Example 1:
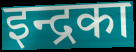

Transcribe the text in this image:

इन्द्रका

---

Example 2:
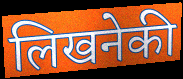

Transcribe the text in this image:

लिखनेकी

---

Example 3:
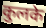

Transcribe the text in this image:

कुलके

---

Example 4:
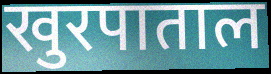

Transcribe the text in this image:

खुरपाताल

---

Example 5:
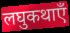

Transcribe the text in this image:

लघुकथाएँ